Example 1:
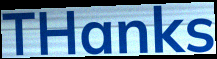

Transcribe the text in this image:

THanks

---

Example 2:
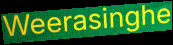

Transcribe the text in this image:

Weerasinghe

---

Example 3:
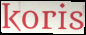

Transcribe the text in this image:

koris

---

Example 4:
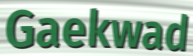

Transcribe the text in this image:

Gaekwad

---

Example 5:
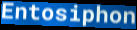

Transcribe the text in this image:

Entosiphon